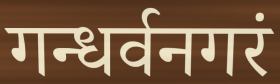
गन्धर्वनगरं